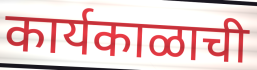
कार्यकाळाची